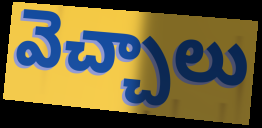
వెచ్చాలు